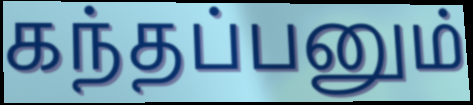
கந்தப்பனும்